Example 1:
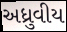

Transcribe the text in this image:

અધ્રુવીય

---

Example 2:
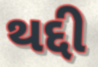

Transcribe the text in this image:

થદ્દી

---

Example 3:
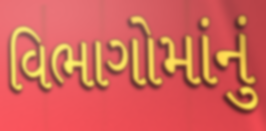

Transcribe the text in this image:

વિભાગોમાંનું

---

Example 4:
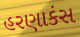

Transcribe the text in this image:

હરણાકંસ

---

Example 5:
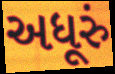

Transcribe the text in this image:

અધૂરું